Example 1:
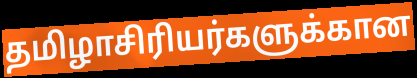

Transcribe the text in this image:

தமிழாசிரியர்களுக்கான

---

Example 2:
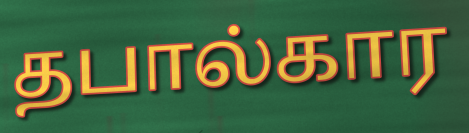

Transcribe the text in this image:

தபால்கார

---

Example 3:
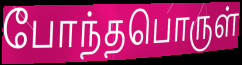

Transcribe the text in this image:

போந்தபொருள்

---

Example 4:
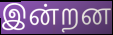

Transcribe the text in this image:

இன்றன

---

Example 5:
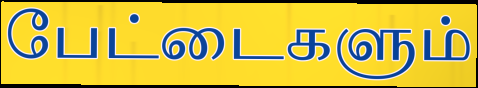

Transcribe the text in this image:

பேட்டைகளும்